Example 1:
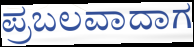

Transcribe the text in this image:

ಪ್ರಬಲವಾದಾಗ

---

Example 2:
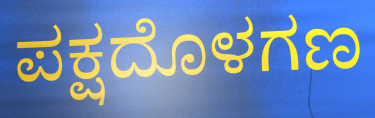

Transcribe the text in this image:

ಪಕ್ಷದೊಳಗಣ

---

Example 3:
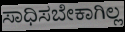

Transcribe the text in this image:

ಸಾಧಿಸಬೇಕಾಗಿಲ್ಲ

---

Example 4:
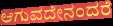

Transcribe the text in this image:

ಆಗುವದೇನಂದರೆ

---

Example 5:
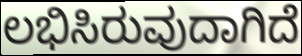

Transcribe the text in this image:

ಲಭಿಸಿರುವುದಾಗಿದೆ